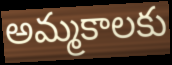
అమ్మకాలకు